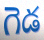
గెడ